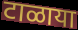
टाळाया